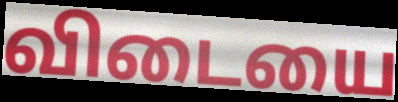
விடையை